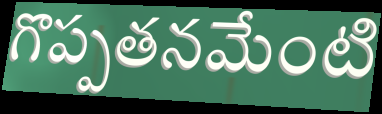
గొప్పతనమేంటి